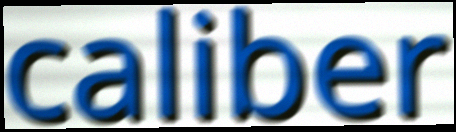
caliber